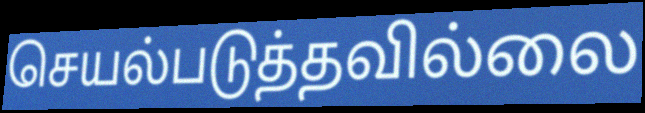
செயல்படுத்தவில்லை